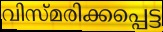
വിസ്മരിക്കപ്പെട്ട